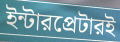
ইন্টারপ্রেটারই